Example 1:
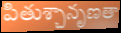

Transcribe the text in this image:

పితుశ్చానృణతా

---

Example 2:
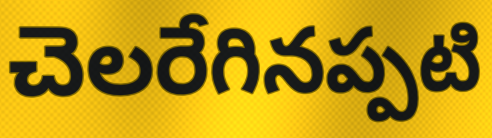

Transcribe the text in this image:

చెలరేగినప్పటి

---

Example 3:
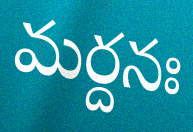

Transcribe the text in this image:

మర్దనః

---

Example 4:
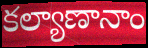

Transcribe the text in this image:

కల్యాణానాం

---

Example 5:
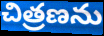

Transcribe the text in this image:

చిత్రణను